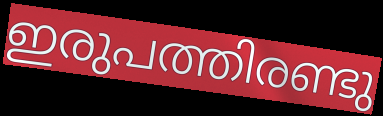
ഇരുപത്തിരണ്ടു